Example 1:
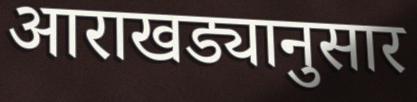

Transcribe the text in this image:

आराखड्यानुसार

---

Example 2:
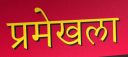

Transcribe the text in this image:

प्रमेखला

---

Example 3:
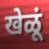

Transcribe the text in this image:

खेळूं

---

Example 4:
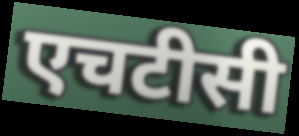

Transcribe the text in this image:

एचटीसी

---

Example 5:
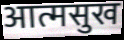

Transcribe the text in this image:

आत्मसुख